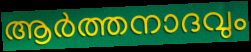
ആർത്തനാദവും